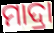
ମାଦ୍ରା